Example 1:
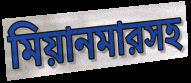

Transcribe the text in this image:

মিয়ানমারসহ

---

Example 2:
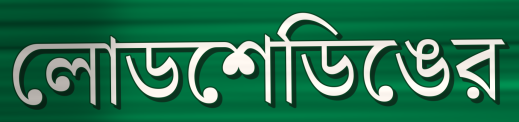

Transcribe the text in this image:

লোডশেডিঙের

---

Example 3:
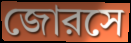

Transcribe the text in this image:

জোরসে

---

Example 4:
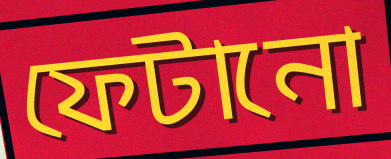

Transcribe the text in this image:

ফেটানো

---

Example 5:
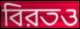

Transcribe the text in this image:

বিরতও